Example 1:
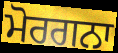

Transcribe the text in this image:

ਮੋਰਗਨਾ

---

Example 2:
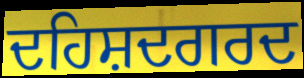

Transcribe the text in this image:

ਦਹਿਸ਼ਦਗਰਦ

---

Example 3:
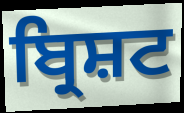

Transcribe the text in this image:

ਬ੍ਰਿਸ਼ਟ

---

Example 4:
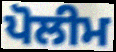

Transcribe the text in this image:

ਪੋਲੀਮ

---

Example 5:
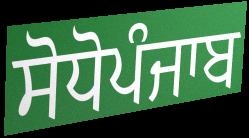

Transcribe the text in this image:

ਸੋਧੋਪੰਜਾਬ